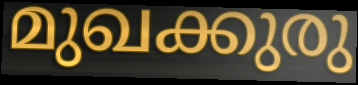
മുഖക്കുരു